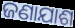
ଜଣାଯାଶ